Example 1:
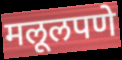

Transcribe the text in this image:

मलूलपणे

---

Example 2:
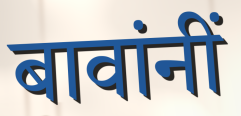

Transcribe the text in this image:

बावांनीं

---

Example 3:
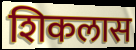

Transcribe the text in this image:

शिकलास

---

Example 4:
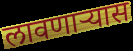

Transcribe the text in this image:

लावणाऱ्यास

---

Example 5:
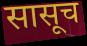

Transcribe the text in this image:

सासूच